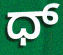
ಧ್